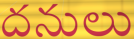
దనులు